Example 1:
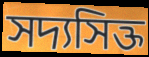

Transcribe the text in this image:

সদ্যসিক্ত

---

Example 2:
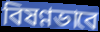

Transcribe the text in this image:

বিষণ্নভাবে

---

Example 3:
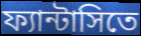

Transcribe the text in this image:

ফ্যান্টাসিতে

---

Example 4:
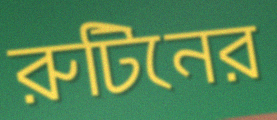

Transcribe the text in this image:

রুটিনের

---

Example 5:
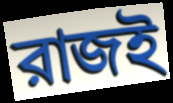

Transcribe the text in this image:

রাজই